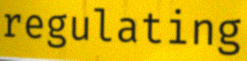
regulating